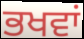
ਭਖਵਾਂ